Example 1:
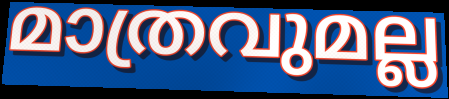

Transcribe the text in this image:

മാത്രവുമല്ല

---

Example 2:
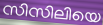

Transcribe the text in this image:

സിസിലിയെ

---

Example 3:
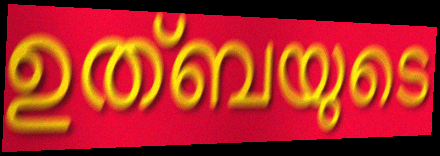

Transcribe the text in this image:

ഉത്ബയുടെ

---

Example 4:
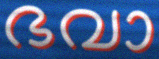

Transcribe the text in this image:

ഭവാ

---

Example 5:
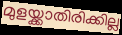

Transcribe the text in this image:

മുളയ്ക്കാതിരിക്കില്ല